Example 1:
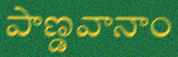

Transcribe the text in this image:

పాణ్డవానాం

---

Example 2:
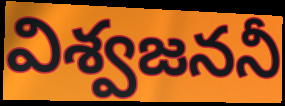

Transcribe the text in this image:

విశ్వజననీ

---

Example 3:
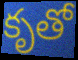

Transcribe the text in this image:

కృతో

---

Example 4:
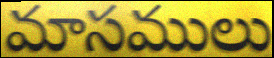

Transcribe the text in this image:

మాసములు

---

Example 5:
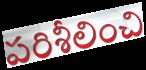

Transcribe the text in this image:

పరిశీలించి